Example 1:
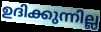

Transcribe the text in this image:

ഉദിക്കുന്നില്ല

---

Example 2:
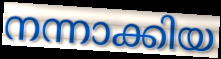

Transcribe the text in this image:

നന്നാക്കിയ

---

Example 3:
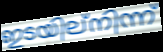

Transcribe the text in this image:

ഇടയില്നിന്ന്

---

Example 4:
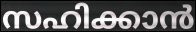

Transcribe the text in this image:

സഹിക്കാൻ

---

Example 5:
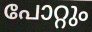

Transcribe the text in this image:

പോറ്റും